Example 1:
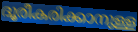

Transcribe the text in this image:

ദൂരീകരിക്കാനുള്ള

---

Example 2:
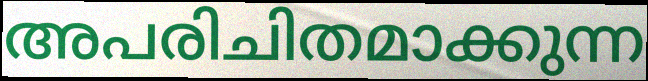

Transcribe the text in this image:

അപരിചിതമാക്കുന്ന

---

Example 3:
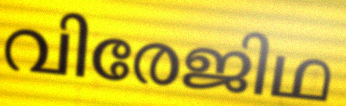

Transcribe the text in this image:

വിരേജിഥ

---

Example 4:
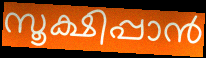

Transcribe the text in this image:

സൂക്ഷിപ്പാൻ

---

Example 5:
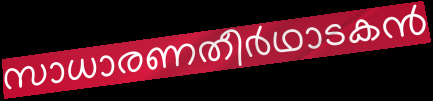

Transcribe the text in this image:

സാധാരണതീർഥാടകൻ